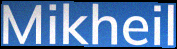
Mikheil